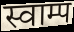
स्वाम्प